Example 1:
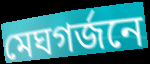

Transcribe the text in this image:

মেঘগর্জনে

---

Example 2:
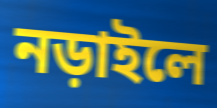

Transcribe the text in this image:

নড়াইলে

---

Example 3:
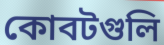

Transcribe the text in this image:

কোবটগুলি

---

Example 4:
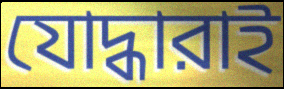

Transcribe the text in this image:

যোদ্ধারাই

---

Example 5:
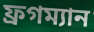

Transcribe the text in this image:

ফ্রগম্যান